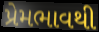
પ્રેમભાવથી